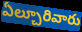
ఏల్చూరివారు